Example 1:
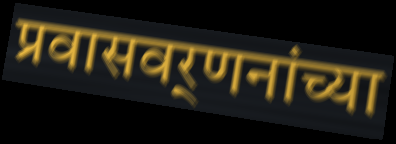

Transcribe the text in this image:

प्रवासवर्णनांच्या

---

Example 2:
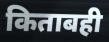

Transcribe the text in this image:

किताबही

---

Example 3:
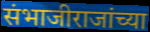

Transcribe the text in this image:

संभाजीराजांच्या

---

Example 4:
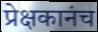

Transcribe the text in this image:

प्रेक्षकानंच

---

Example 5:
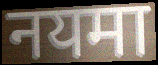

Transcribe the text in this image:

नयमा